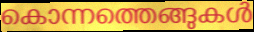
കൊന്നത്തെങ്ങുകൾ